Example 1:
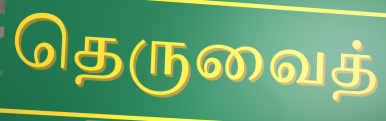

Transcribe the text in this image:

தெருவைத்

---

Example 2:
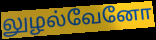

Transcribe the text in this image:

லுழல்வேனோ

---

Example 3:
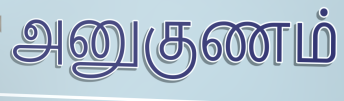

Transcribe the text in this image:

அனுகுணம்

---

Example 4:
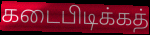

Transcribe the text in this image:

கடைபிடிக்கத்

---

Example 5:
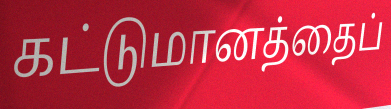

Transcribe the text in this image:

கட்டுமானத்தைப்